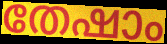
തേഷാം